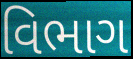
વિભાગ